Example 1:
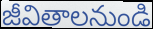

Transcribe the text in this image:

జీవితాలనుండి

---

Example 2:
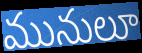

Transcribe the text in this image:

మునులూ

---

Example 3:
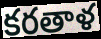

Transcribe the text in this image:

కరతాళ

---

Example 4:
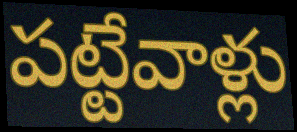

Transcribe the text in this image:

పట్టేవాళ్లు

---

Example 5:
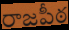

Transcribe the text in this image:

రాజపీఠ